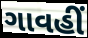
ગાવહીં